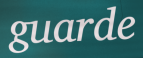
guarde